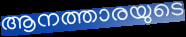
ആനത്താരയുടെ